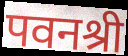
पवनश्री